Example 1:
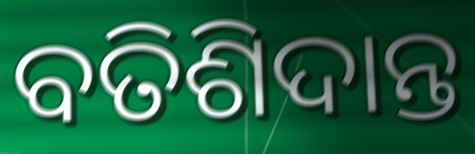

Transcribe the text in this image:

ବତିଶିଦାନ୍ତ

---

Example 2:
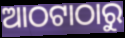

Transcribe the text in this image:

ଆଠଟାଠାରୁ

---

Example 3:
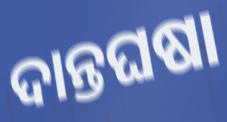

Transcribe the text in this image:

ଦାନ୍ତଘଷା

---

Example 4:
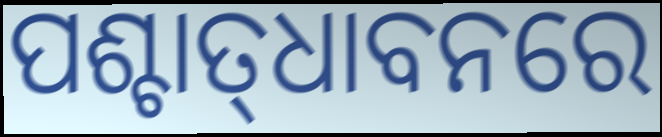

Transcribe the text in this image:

ପଶ୍ଚାତ୍‍ଧାବନରେ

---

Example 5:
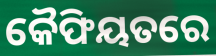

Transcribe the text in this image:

କୈଫିୟତରେ